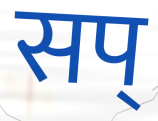
सप्